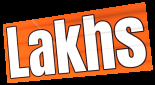
Lakhs